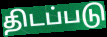
திடப்படு